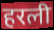
हरली